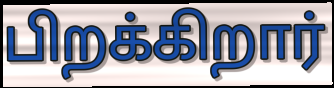
பிறக்கிறார்